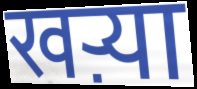
खऱ्‍या